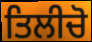
ਤਿਲੀਚੋ